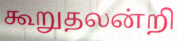
கூறுதலன்றி